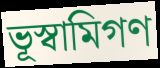
ভূস্বামিগণ